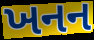
ખનન